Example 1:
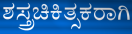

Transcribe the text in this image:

ಶಸ್ತ್ರಚಿಕಿತ್ಸಕರಾಗಿ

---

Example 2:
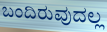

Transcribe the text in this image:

ಬಂದಿರುವುದಲ್ಲ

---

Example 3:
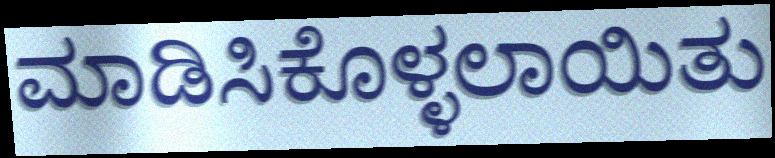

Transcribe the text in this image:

ಮಾಡಿಸಿಕೊಳ್ಳಲಾಯಿತು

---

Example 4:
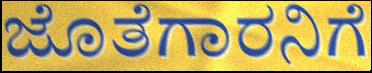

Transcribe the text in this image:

ಜೊತೆಗಾರನಿಗೆ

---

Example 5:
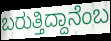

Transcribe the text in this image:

ಬರುತ್ತಿದ್ದಾನೆಂಬ